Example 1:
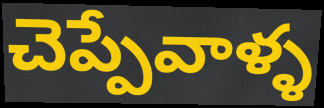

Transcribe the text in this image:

చెప్పేవాళ్ళ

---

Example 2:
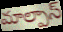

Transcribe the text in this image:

మాల్పాస్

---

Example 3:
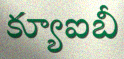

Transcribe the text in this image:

క్యూఐబీ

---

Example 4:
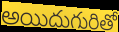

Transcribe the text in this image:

అయిదుగురితో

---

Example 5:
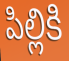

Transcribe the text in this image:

పిల్లికి